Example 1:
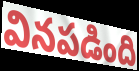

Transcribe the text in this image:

వినపడింది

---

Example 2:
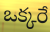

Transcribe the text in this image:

ఒక్కరే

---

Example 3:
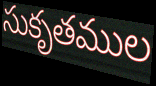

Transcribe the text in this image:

సుకృతముల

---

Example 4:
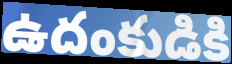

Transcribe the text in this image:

ఉదంకుడికి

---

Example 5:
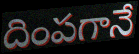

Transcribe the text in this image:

దింపగానే